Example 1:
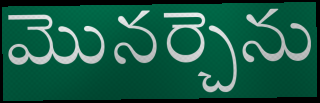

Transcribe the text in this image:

మొనర్చెను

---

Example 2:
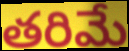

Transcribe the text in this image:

తరిమే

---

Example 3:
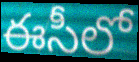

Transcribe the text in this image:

ఈసీలో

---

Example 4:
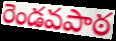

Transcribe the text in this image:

రెండవపాఠ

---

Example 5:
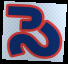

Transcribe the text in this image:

సె